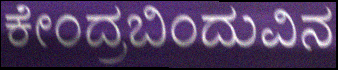
ಕೇಂದ್ರಬಿಂದುವಿನ